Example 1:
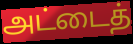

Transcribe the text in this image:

அட்டைத்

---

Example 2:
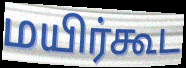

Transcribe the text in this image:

மயிர்கூட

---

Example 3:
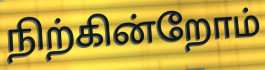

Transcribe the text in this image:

நிற்கின்றோம்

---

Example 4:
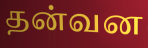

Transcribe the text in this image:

தன்வன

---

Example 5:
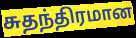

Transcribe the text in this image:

சுதந்திரமான